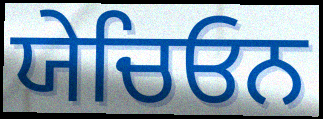
ਯੇਚਿਓਨ